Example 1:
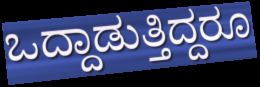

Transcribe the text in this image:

ಒದ್ದಾಡುತ್ತಿದ್ದರೂ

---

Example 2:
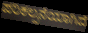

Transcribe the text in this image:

ಪರಿಕಲ್ಪನೆಯಾಗಿದೆ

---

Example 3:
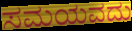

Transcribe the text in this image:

ಸಮಯವದು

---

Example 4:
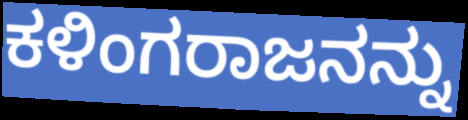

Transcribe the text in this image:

ಕಳಿಂಗರಾಜನನ್ನು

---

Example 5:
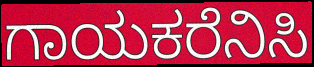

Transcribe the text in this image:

ಗಾಯಕರೆನಿಸಿ